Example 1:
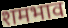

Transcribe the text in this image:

शमभाव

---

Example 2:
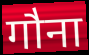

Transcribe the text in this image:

गौना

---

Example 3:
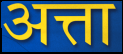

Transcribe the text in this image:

अत्ता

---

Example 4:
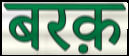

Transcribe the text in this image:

बरक़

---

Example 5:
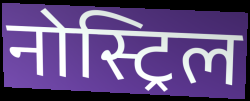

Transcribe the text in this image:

नोस्ट्रिल